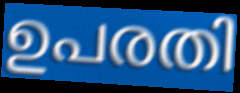
ഉപരതി